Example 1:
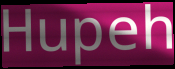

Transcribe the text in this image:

Hupeh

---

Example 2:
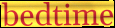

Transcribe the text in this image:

bedtime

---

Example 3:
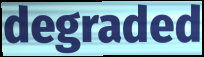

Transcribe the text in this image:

degraded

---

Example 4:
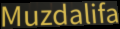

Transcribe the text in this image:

Muzdalifa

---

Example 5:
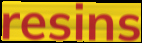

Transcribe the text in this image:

resins